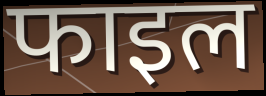
फाइल